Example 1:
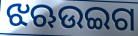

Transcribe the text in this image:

ଝଋଉଇଗ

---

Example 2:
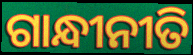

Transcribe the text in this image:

ଗାନ୍ଧୀନୀତି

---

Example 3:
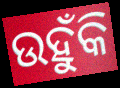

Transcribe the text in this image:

ଉହୁଁକି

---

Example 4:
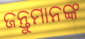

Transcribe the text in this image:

ଜନ୍ତୁମାନଙ୍କ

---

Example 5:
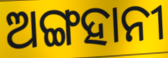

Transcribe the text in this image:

ଅଙ୍ଗହାନୀ